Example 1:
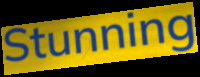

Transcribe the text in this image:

Stunning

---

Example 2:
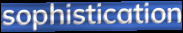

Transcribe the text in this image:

sophistication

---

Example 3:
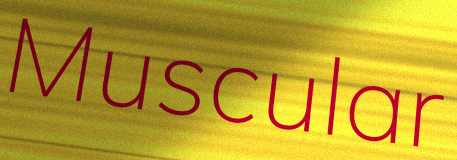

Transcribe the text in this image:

Muscular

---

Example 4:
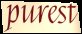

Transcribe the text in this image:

purest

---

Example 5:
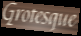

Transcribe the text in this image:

Grotesque